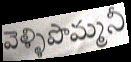
వెళ్ళిపొమ్మనీ